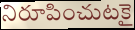
నిరూపించుటకై